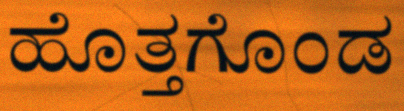
ಹೊತ್ತಗೊಂಡ